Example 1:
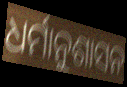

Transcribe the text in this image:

ଧର୍ମାନୁଶାସନ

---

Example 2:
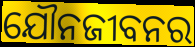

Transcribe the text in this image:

ଯୌନଜୀବନର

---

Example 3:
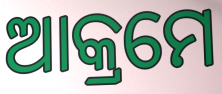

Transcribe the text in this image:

ଆକ୍ରମେ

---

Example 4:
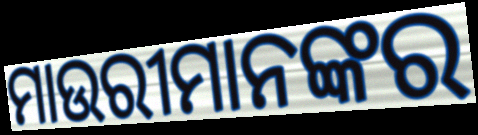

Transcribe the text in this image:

ମାଉରୀମାନଙ୍କର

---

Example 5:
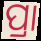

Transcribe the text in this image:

ପ୍ରା